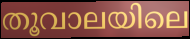
തൂവാലയിലെ